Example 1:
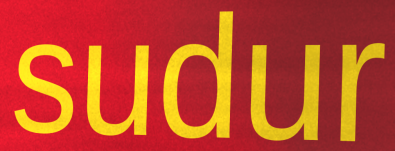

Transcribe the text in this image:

sudur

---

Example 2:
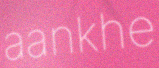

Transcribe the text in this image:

aankhe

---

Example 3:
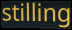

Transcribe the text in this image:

stilling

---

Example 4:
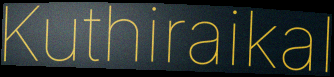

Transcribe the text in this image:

Kuthiraikal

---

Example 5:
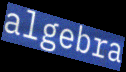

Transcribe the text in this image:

algebra